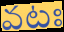
వటః